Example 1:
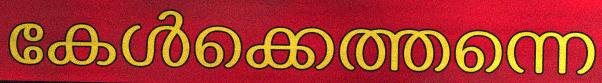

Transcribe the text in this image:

കേൾക്കെത്തന്നെ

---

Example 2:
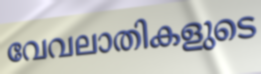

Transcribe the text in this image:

വേവലാതികളുടെ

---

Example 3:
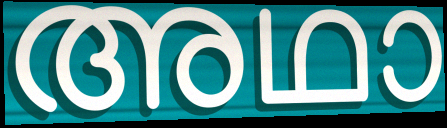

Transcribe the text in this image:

അഥാ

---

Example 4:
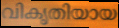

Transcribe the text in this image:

വികൃതിയായ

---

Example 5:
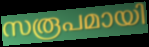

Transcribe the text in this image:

സരൂപമായി